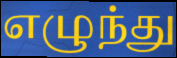
எழுந்து